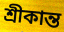
শ্রীকান্ত